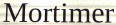
Mortimer